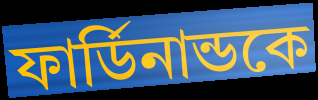
ফার্ডিনান্ডকে